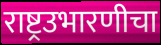
राष्ट्रउभारणीचा